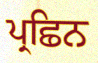
ਪ੍ਰਛਿਨ